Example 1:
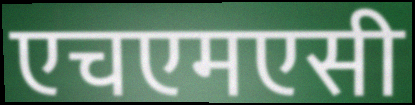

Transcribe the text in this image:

एचएमएसी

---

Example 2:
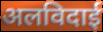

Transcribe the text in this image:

अलविदाई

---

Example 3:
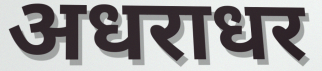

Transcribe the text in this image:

अधराधर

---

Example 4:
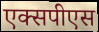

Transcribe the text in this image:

एक्सपीएस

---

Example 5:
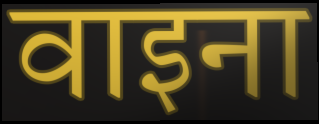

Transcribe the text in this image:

वाइना